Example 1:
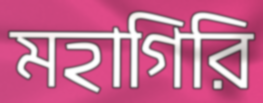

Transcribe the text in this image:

মহাগিরি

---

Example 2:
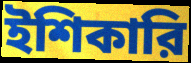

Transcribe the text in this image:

ইশিকারি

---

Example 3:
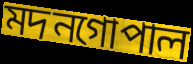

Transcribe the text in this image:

মদনগোপাল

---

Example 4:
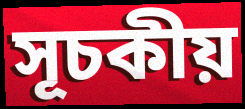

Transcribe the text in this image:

সূচকীয়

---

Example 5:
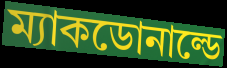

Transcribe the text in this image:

ম্যাকডোনাল্ডে